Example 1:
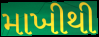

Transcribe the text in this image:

માખીથી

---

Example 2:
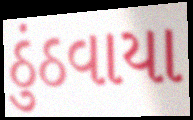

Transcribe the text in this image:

ઠુંઠવાયા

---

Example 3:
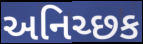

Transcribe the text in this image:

અનિચ્છક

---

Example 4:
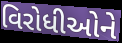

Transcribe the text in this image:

વિરોધીઓને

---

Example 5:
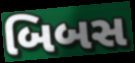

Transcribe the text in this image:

બિબસ